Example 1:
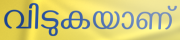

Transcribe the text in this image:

വിടുകയാണ്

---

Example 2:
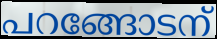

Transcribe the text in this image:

പറങ്ങോടന്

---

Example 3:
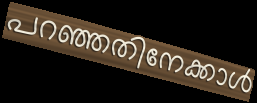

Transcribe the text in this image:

പറഞ്ഞതിനേക്കാൾ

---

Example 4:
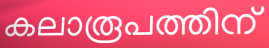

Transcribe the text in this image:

കലാരൂപത്തിന്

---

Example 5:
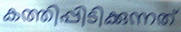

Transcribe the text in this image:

കത്തിപ്പിടിക്കുന്നത്